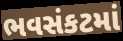
ભવસંકટમાં